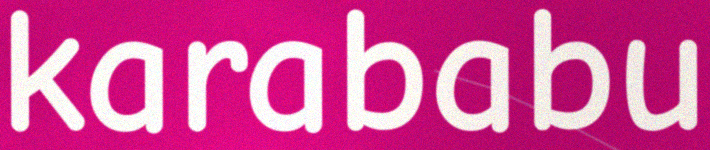
karababu